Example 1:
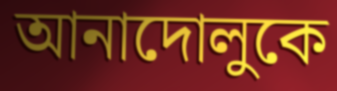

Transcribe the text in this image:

আনাদোলুকে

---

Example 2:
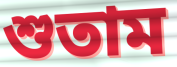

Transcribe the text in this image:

শুতাম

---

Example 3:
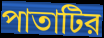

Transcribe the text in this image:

পাতাটির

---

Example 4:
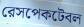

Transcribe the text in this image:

রেসপেকটেবল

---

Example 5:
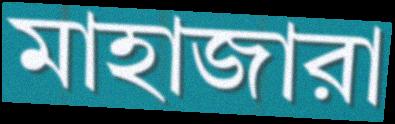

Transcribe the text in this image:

মাহাজারা